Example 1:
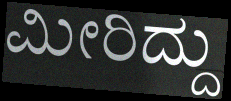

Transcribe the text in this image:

ಮೀರಿದ್ದು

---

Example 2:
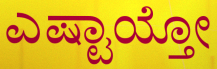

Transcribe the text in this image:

ಎಷ್ಟಾಯ್ತೋ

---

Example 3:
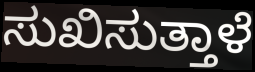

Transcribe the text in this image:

ಸುಖಿಸುತ್ತಾಳೆ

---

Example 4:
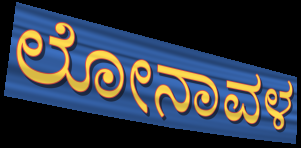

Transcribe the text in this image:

ಲೋನಾವಳ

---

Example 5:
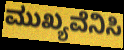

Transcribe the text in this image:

ಮುಖ್ಯವೆನಿಸಿ